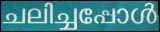
ചലിച്ചപ്പോൾ